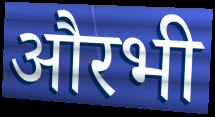
औरभी